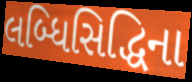
લબ્ધિસિદ્ધિના